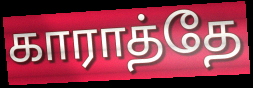
காராத்தே